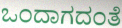
ಒಂದಾಗದಂತೆ